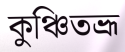
কুঞ্চিতভ্রূ